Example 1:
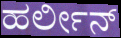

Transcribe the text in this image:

ಹರ್ಲೀನ್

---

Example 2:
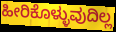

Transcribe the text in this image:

ಹೀರಿಕೊಳ್ಳುವುದಿಲ್ಲ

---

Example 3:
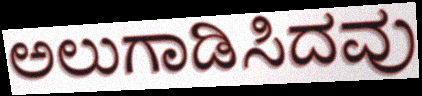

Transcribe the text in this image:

ಅಲುಗಾಡಿಸಿದವು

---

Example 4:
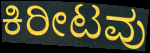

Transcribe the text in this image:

ಕಿರೀಟವು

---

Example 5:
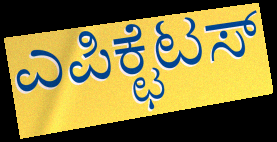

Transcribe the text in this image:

ಎಪಿಕ್ಟೆಟಸ್